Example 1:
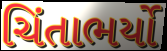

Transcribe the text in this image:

ચિંતાભર્યો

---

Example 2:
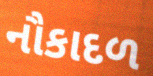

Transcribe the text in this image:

નૌકાદળ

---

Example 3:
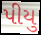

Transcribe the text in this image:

પીયુ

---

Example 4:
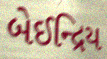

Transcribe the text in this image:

બેઈન્દ્રિય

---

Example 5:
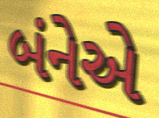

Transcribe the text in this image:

બંનેએ